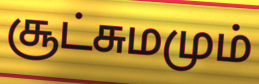
சூட்சுமமும்